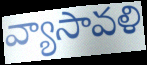
వ్యాసావళి